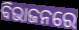
ବିଭାଜନରେ